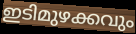
ഇടിമുഴക്കവും